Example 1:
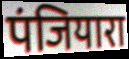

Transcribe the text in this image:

पंजियारा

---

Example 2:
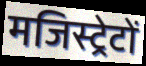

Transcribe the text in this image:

मजिस्ट्रेटों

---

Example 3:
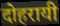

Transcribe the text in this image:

दोहरायी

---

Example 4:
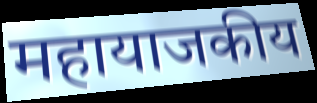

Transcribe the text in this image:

महायाजकीय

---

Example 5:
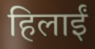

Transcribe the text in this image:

हिलाईं